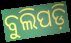
ବୁଲିପଡ଼ି